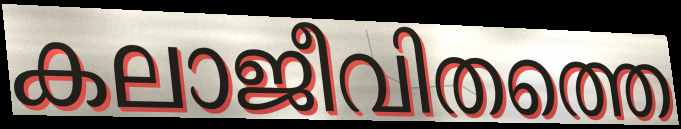
കലാജീവിതത്തെ